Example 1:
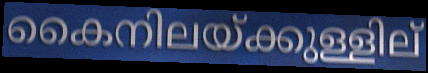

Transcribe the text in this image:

കൈനിലയ്ക്കുള്ളില്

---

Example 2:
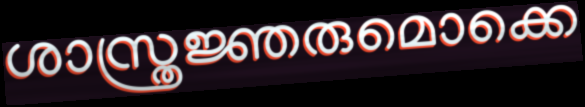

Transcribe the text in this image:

ശാസ്ത്രജ്ഞരുമൊക്കെ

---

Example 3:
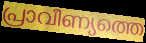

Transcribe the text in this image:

പ്രാവീണ്യത്തെ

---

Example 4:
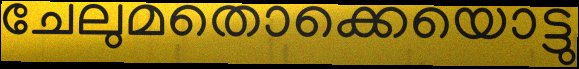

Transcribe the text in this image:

ചേലുമതൊക്കെയൊട്ടു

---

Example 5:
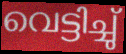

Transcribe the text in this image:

വെട്ടിച്ചു്